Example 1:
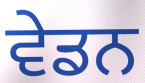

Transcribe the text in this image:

ਵੇਡਨ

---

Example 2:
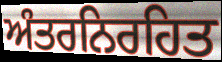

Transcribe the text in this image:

ਅੰਤਰਨਿਰਹਿਤ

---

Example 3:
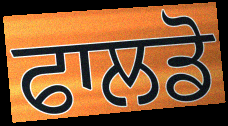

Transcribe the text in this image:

ਫਾਲਡੋ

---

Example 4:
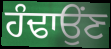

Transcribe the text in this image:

ਹੰਢਾਉਂਣ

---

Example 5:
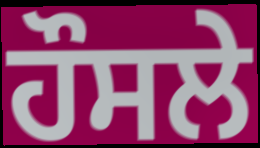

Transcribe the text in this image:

ਹੌਸਲੇ